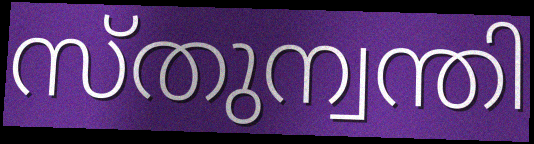
സ്തുന്വന്തി